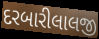
દરબારીલાલજી